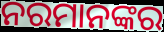
ନରମାନଙ୍କର